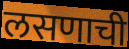
लसणाची